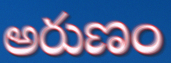
అరుణం